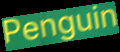
Penguin